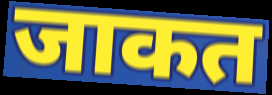
जाकत